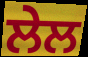
ਲੇਲ